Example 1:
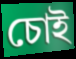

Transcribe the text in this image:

চোই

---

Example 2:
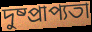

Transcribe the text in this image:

দুষ্প্রাপ্যতা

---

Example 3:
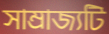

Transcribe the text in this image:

সাম্রাজ্যটি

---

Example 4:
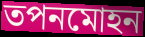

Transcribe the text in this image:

তপনমোহন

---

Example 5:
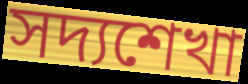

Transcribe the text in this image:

সদ্যশেখা